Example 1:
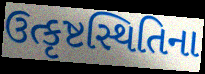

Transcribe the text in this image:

ઉત્કૃષ્ટસ્થિતિના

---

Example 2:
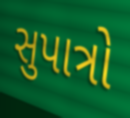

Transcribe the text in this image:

સુપાત્રો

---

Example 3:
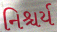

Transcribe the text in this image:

નિશ્ચર્ય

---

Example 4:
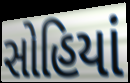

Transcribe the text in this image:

સોહિયાં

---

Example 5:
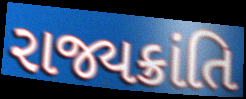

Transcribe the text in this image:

રાજ્યક્રાંતિ